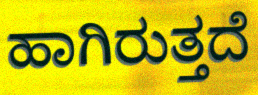
ಹಾಗಿರುತ್ತದೆ